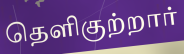
தெளிகுற்றார்